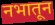
नभातून